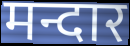
मन्दार